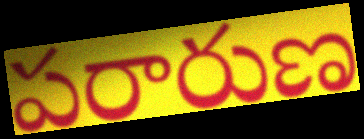
పరారుణ